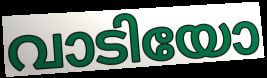
വാടിയോ